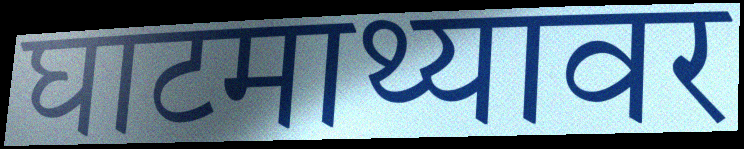
घाटमाथ्यावर